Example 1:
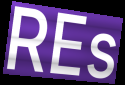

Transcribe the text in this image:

REs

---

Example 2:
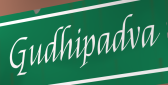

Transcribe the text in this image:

Gudhipadva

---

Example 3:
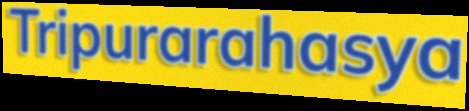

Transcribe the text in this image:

Tripurarahasya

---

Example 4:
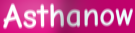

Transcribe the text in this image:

Asthanow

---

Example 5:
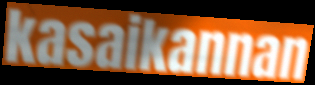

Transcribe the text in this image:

kasaikannan